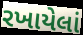
રખાયેલાં